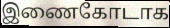
இணைகோடாக